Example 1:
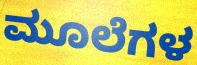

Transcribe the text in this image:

ಮೂಲೆಗಳ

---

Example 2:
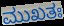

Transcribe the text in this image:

ಮುಖತಃ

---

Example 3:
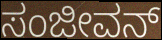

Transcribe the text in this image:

ಸಂಜೀವನ್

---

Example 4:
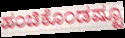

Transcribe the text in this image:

ಹಂಚಿಕೊಂಡಷ್ಟೂ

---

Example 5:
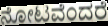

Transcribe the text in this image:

ನೋಟವೆಂದರೆ